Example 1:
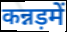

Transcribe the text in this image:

कन्नड़में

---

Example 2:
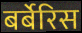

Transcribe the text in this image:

बर्बेरिस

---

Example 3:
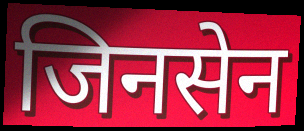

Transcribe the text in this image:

जिनसेन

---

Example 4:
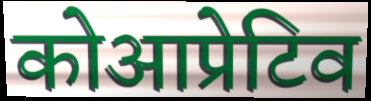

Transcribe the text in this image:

कोआप्रेटिव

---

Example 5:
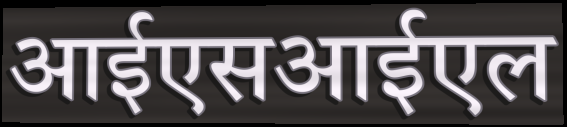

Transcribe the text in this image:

आईएसआईएल